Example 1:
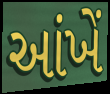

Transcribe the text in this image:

આંખેં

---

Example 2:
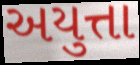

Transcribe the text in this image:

અયુત્તા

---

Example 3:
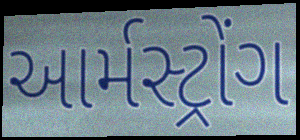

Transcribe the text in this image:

આર્મસ્ટ્રોંગ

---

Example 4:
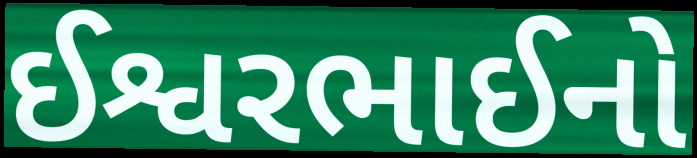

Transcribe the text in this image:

ઈશ્વરભાઈનો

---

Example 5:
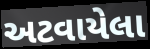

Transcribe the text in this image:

અટવાયેલા